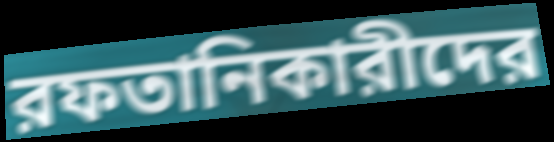
রফতানিকারীদের